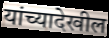
यांच्यादेखील